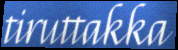
tiruttakka